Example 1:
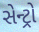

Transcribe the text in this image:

સેન્ટ્રો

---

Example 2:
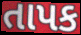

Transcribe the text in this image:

તાપક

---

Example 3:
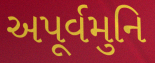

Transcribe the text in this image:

અપૂર્વમુનિ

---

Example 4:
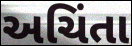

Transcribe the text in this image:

અચિંતા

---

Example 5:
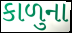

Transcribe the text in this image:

કાળુના